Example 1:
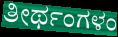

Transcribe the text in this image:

ತೀರ್ಥಂಗಳಂ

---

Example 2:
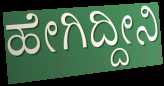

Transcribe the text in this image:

ಹೇಗಿದ್ದೀನಿ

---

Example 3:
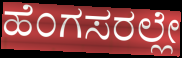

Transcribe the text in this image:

ಹೆಂಗಸರಲ್ಲೇ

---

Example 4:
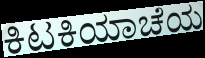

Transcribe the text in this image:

ಕಿಟಕಿಯಾಚೆಯ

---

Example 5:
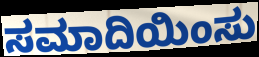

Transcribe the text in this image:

ಸಮಾದಿಯಿಂಸು